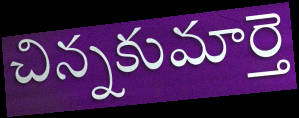
చిన్నకుమార్తె